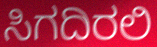
ಸಿಗದಿರಲಿ